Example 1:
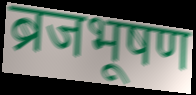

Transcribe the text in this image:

ब्रजभूषण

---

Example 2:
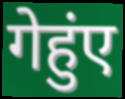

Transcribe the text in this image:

गेहुंए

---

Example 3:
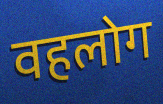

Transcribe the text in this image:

वहलोग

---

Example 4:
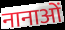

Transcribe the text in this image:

नानाओं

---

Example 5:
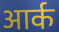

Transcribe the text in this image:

आर्क